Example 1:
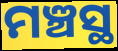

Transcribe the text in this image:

ମଞ୍ଚସ୍ଥ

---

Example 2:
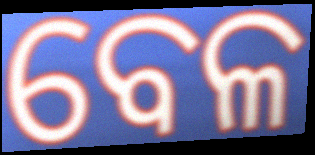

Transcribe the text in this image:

ବେଳ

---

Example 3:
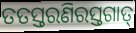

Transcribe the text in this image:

ତତସ୍ତରଣିରସ୍ତଗାତ୍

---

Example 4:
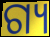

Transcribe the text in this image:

ଗ୍ଯ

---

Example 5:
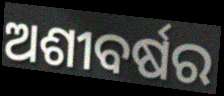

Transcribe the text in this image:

ଅଶୀବର୍ଷର